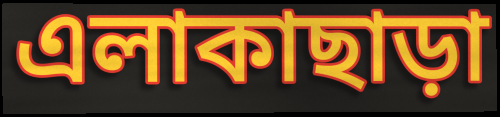
এলাকাছাড়া